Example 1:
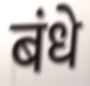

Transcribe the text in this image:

बंधे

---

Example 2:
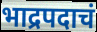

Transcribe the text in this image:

भाद्रपदाचं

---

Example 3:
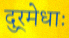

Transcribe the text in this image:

दुर्मेधाः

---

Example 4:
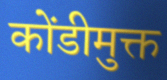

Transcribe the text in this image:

कोंडीमुक्त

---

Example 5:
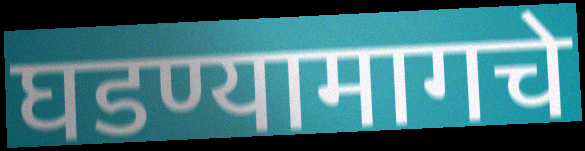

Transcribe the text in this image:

घडण्यामागचे